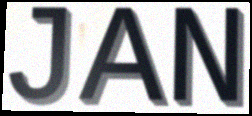
JAN